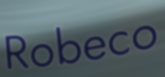
Robeco